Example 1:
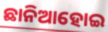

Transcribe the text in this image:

ଛାନିଆହୋଇ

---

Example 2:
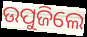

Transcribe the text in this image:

ଉପୁଜିଲେ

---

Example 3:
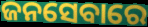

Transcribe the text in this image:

ଜନସେବାରେ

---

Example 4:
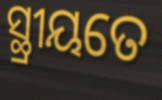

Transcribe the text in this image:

ସ୍ଥ୍ରୀୟତେ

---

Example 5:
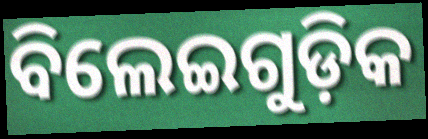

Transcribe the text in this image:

ବିଲେଇଗୁଡ଼ିକ